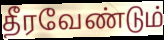
தீரவேண்டும்